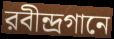
রবীন্দ্রগানে